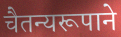
चैतन्यरूपाने